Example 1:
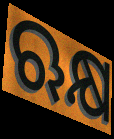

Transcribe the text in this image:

ଋକ୍ଷ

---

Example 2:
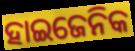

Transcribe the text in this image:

ହାଇଜେନିକ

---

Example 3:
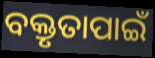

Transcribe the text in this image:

ବକ୍ତୃତାପାଇଁ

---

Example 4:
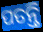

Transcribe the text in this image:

ପତନ୍ତି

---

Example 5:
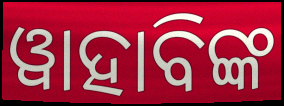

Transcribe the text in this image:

ୱାହାବିଙ୍କ